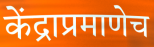
केंद्राप्रमाणेच